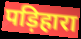
पड़िहारा